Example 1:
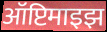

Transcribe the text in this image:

ऑप्टिमाइझ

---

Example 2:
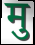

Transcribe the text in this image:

मु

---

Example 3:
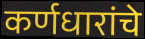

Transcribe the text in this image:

कर्णधारांचे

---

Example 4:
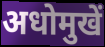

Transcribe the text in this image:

अधोमुखें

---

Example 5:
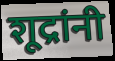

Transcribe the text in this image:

शूद्रांनी